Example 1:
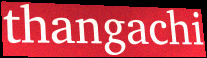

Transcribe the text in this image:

thangachi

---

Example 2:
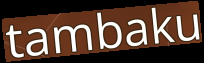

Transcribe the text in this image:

tambaku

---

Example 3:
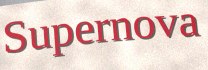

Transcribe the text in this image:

Supernova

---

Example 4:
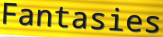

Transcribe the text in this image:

Fantasies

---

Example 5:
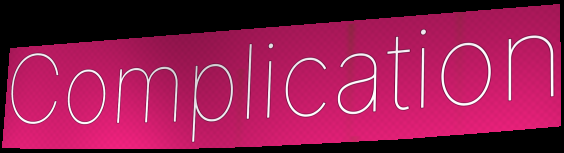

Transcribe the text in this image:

Complication